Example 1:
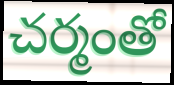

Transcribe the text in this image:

చర్మంతో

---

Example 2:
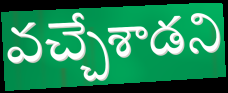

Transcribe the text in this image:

వచ్చేశాడని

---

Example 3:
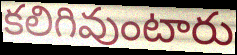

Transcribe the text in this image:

కలిగివుంటారు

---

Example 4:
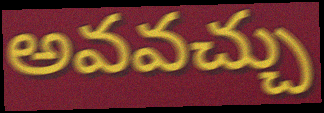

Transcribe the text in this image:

అవవచ్చు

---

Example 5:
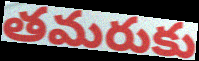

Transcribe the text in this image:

తమరుకు